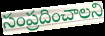
సంప్రదించాలని